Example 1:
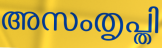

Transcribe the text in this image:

അസംതൃപ്തി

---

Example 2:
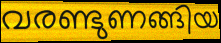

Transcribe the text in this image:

വരണ്ടുണങ്ങിയ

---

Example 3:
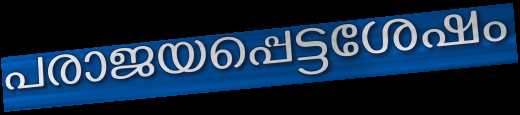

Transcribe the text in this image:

പരാജയപ്പെട്ടശേഷം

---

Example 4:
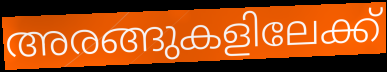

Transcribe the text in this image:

അരങ്ങുകളിലേക്ക്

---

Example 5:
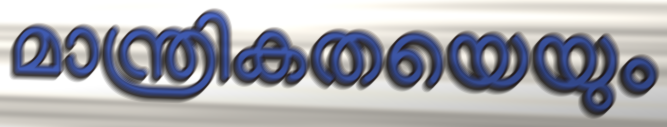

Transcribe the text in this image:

മാന്ത്രികതയെയും